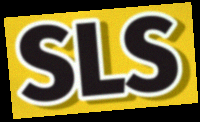
SLS